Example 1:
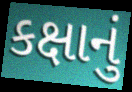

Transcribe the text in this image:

કક્ષાનું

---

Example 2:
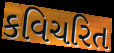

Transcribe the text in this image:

કવિચરિત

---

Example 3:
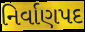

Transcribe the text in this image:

નિર્વાણપદ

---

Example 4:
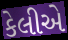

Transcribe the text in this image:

કેલીએ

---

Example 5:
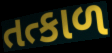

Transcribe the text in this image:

તત્કાળ